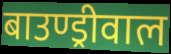
बाउण्ड्रीवाल